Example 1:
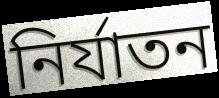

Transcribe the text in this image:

নির্যাতন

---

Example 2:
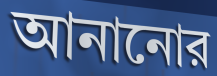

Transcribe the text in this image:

আনানোর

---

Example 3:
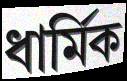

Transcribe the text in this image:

ধার্মিক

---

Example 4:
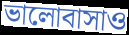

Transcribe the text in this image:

ভালোবাসাও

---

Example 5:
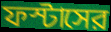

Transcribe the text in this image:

ফস্টাসের